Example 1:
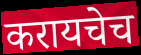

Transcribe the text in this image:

करायचेच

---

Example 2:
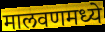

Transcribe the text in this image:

मालवणमध्ये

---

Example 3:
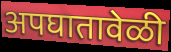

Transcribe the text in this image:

अपघातावेळी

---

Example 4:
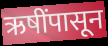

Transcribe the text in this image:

ऋषींपासून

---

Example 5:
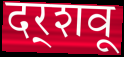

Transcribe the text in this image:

दर्शवू